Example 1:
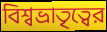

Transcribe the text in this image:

বিশ্বভ্রাতৃত্বের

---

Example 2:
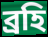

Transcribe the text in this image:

ব্রহি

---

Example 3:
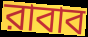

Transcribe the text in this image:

রাবাব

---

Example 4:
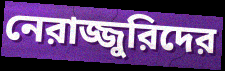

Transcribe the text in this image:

নেরাজ্জুরিদের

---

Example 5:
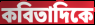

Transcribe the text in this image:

কবিতাদিকে